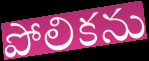
పోలికను